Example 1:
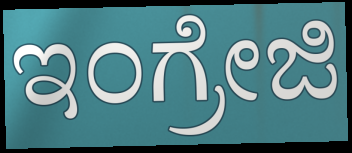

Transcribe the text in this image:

ಇಂಗ್ರೇಜಿ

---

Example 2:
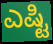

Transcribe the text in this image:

ಎಷ್ಟಿ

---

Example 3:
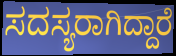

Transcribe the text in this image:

ಸದಸ್ಯರಾಗಿದ್ದಾರೆ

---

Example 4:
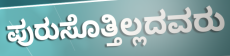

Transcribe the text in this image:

ಪುರುಸೊತ್ತಿಲ್ಲದವರು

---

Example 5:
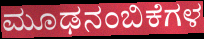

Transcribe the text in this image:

ಮೂಢನಂಬಿಕೆಗಳ